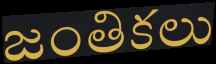
జంతికలు